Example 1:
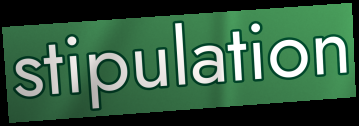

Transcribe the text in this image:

stipulation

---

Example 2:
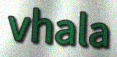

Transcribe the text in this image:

vhala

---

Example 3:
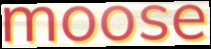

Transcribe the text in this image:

moose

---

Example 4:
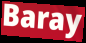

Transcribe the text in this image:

Baray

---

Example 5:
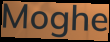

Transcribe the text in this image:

Moghe